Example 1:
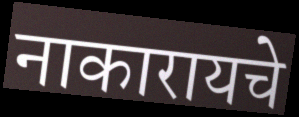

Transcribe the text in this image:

नाकारायचे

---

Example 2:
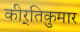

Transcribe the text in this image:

कीर्तिकुमार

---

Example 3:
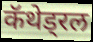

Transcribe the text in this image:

कॅथेड्रल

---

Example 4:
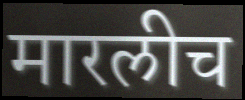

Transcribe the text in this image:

मारलीच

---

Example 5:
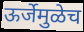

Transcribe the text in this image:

ऊर्जेमुळेच